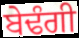
ਬੇਢੰਗੀ